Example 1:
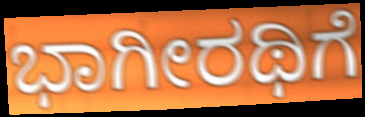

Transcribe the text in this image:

ಭಾಗೀರಥಿಗೆ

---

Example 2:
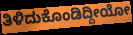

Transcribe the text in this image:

ತಿಳಿದುಕೊಂಡಿದ್ದೀಯೋ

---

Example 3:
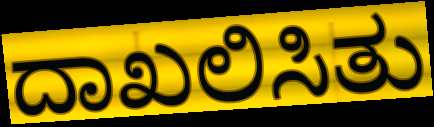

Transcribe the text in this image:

ದಾಖಲಿಸಿತು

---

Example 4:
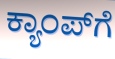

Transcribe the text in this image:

ಕ್ಯಾಂಪ್‍ಗೆ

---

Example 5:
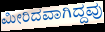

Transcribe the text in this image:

ಮೀರಿದವಾಗಿದ್ದವು